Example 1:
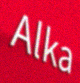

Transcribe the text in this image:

Alka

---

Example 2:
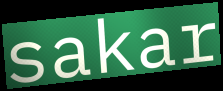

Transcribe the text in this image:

sakar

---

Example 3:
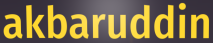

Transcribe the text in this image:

akbaruddin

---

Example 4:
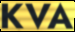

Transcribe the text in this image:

KVA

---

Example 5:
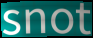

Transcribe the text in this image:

snot